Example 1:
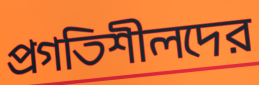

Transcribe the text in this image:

প্রগতিশীলদের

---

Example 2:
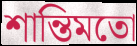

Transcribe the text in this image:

শান্তিমতো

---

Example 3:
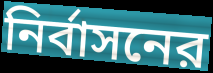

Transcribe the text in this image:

নির্বাসনের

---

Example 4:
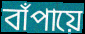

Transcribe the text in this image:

বাঁপায়ে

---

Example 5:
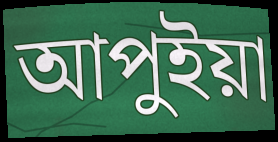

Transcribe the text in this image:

আপুইয়া